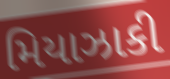
મિયાઝાકી